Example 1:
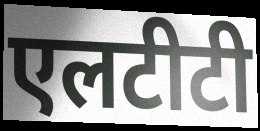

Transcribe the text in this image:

एलटीटी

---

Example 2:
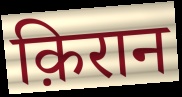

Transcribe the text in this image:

क़िरान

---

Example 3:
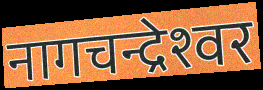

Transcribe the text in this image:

नागचन्द्रेश्वर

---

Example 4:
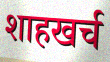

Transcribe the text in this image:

शाहखर्च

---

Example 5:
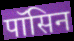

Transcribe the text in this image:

पॉसिन